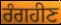
ਰੰਗਹੀਣ